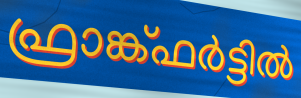
ഫ്രാങ്ക്ഫർട്ടിൽ